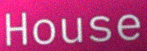
House